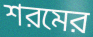
শরমের